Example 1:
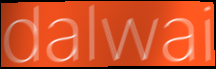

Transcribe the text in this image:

dalwai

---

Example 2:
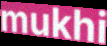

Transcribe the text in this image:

mukhi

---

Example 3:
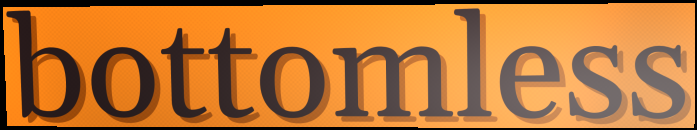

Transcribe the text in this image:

bottomless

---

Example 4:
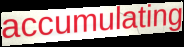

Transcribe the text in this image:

accumulating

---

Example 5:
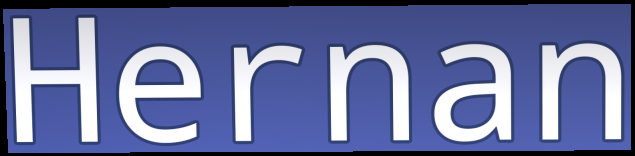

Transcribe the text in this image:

Hernan